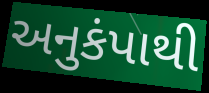
અનુકંપાથી